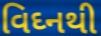
વિઘ્નથી